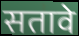
सतावे